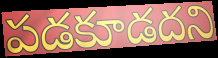
పడకూడదని